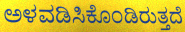
ಅಳವಡಿಸಿಕೊಂಡಿರುತ್ತದೆ